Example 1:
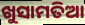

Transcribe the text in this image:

ଖୁସାମତିଆ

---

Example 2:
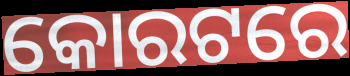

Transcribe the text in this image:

କୋରଟରେ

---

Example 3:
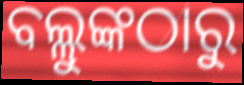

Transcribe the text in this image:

ବଲ୍ଲୁଙ୍କଠାରୁ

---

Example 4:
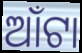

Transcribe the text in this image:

ଆଁଟା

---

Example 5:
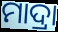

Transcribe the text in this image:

ମାଦ୍ରା